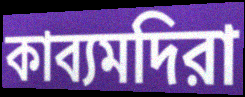
কাব্যমদিরা